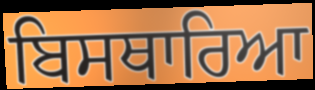
ਬਿਸਥਾਰਿਆ